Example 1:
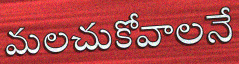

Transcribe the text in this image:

మలచుకోవాలనే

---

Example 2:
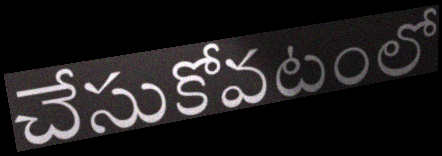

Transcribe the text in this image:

చేసుకోవటంలో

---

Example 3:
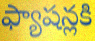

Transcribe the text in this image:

ఫ్యాషన్లకి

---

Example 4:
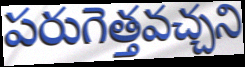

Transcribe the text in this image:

పరుగెత్తవచ్చని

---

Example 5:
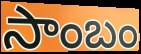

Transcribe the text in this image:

సాంబం